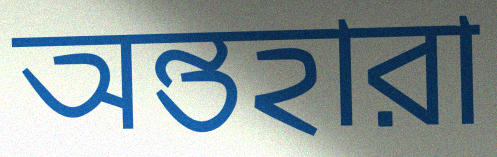
অন্তহারা